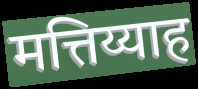
मत्तिय्याह